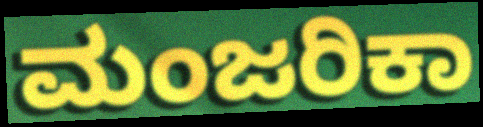
ಮಂಜರಿಕಾ